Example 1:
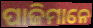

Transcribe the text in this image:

ପାଜିମାନେ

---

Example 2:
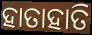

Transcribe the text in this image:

ହାତାହାତି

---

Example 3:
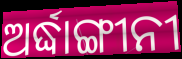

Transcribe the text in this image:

ଅର୍ଦ୍ଧାଙ୍ଗୀନୀ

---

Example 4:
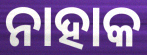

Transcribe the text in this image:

ନାହାକ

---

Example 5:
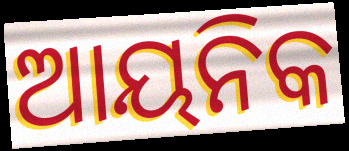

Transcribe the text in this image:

ଆୟନିକ